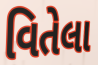
વિતેલા